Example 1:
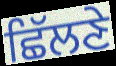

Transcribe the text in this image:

ਛਿੱਲਣੇ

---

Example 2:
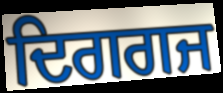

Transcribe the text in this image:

ਦਿਗਗਜ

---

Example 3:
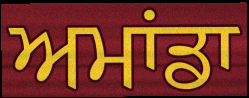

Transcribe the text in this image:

ਅਮਾਂਡਾ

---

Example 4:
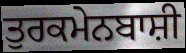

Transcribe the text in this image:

ਤੁਰਕਮੇਨਬਾਸ਼ੀ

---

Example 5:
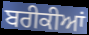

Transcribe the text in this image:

ਬਰੀਕੀਆਂ